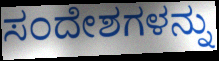
ಸಂದೇಶಗಳನ್ನು